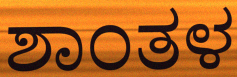
ಶಾಂತಳ